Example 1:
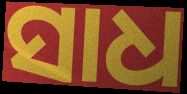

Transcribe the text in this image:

ସାଧ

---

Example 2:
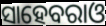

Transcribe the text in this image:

ସାହେବରାଓ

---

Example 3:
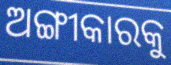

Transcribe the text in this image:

ଅଙ୍ଗୀକାରକୁ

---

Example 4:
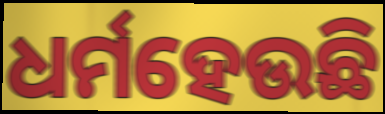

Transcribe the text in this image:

ଧର୍ମହେଉଛି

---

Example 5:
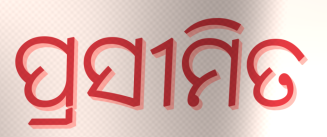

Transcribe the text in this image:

ପ୍ରସୀମିତ